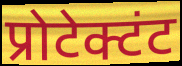
प्रोटेक्टंट